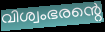
വിശ്വംഭരന്റെ